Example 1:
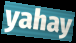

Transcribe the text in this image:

yahay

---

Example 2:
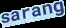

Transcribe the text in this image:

sarang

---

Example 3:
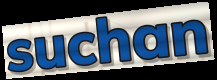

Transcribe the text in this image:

suchan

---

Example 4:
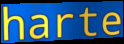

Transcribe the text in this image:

harte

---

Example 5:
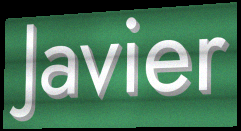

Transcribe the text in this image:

Javier